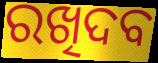
ରଖିଦବ